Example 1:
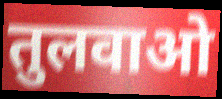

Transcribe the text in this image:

तुलवाओ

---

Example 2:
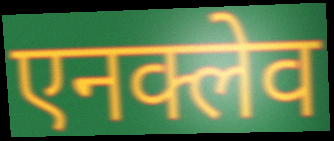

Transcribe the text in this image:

एनक्लेव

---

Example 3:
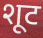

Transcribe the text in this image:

शूट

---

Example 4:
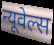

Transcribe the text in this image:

न्यूवेल्स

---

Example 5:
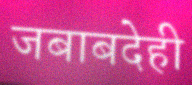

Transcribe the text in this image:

जबाबदेही